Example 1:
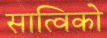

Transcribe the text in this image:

सात्विको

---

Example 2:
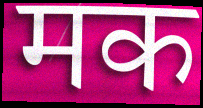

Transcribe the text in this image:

मक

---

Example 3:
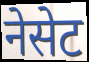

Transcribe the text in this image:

नेसेट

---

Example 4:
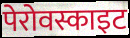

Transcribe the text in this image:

पेरोवस्काइट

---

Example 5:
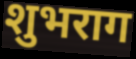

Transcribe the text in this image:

शुभराग